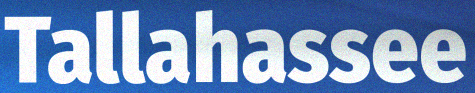
Tallahassee